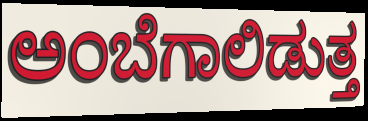
ಅಂಬೆಗಾಲಿಡುತ್ತ